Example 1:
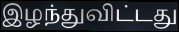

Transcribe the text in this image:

இழந்துவிட்டது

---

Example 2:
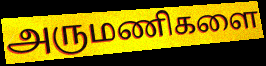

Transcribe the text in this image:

அருமணிகளை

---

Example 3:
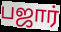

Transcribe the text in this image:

பஜார்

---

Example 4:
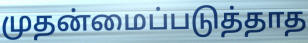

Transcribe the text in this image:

முதன்மைப்படுத்தாத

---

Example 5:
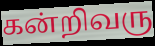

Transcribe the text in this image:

கன்றிவரு